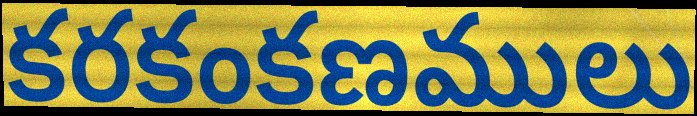
కరకంకణములు